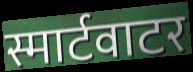
स्मार्टवाटर